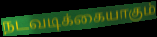
நடவடிக்கையாகும்